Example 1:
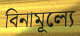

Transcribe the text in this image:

বিনামূল্যে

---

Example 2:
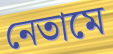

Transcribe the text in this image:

নেতামে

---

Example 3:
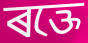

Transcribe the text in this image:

ৰক্তে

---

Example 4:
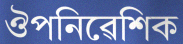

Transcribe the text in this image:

ঔপনিৱেশিক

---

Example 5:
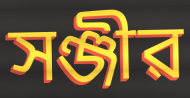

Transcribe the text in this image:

সঞ্জীৱ